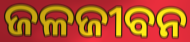
ଜଳଜୀବନ